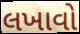
લખાવો